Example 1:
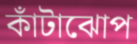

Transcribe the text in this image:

কাঁটাঝোপ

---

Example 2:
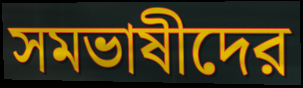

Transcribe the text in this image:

সমভাষীদের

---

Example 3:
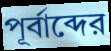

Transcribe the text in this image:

পূর্বাব্দের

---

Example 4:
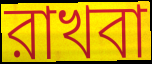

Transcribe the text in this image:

রাখবা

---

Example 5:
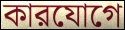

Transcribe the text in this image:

কারযোগে